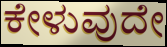
ಕೇಳುವುದೇ